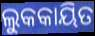
ଲୁକକାୟିତ